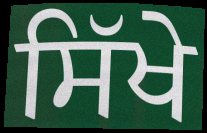
ਸਿੱਖੇ